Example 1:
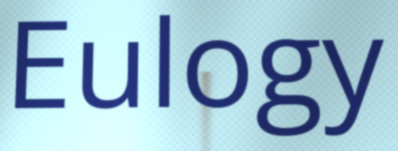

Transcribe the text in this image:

Eulogy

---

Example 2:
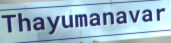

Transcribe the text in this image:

Thayumanavar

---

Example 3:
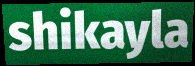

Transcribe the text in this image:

shikayla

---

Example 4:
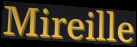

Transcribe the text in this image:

Mireille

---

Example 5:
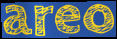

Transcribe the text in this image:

areo